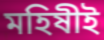
মহিষীই